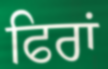
ਫਿਰਾਂ